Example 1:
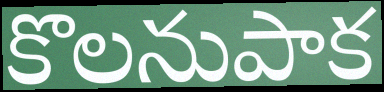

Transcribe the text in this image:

కొలనుపాక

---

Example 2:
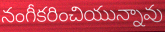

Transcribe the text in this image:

నంగీకరించియున్నావు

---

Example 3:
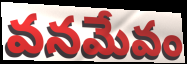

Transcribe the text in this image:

వనమేవం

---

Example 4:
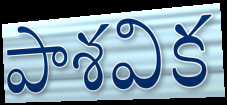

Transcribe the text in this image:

పాశవిక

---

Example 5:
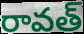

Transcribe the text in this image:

రావత్